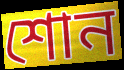
শোন